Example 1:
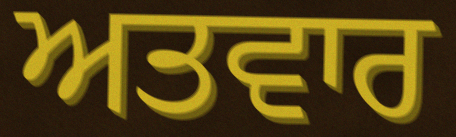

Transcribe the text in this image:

ਅਤਵਾਰ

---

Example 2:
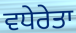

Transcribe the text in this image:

ਵਧੇਰੇਤਾ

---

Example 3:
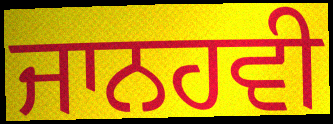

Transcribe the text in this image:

ਜਾਨਹਵੀ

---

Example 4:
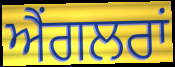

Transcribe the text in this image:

ਐਂਗਲਰਾਂ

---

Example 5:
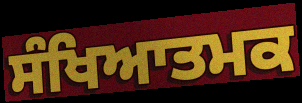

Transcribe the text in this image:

ਸੰਖਿਆਤਮਕ